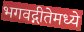
भगवद्गीतेमध्ये